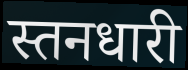
स्तनधारी